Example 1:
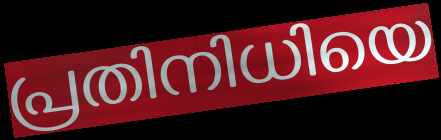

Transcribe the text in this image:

പ്രതിനിധിയെ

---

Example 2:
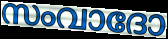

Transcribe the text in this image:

സംവാദോ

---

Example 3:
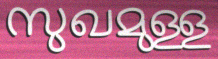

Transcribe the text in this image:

സുഖമുള്ള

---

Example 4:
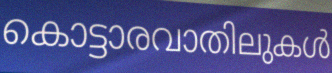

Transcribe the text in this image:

കൊട്ടാരവാതിലുകൾ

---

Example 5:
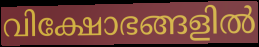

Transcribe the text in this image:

വിക്ഷോഭങ്ങളിൽ